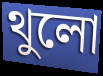
থুলো